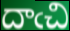
దాఁచి